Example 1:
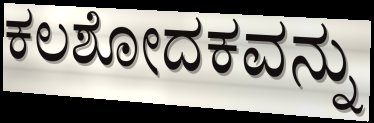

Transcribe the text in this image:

ಕಲಶೋದಕವನ್ನು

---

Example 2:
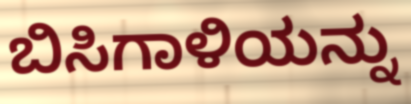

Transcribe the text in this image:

ಬಿಸಿಗಾಳಿಯನ್ನು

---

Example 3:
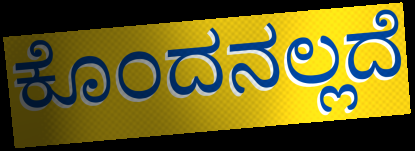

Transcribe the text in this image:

ಕೊಂದನಲ್ಲದೆ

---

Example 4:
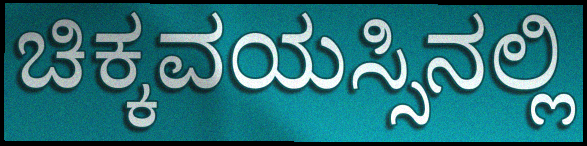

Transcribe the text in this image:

ಚಿಕ್ಕವಯಸ್ಸಿನಲ್ಲಿ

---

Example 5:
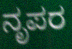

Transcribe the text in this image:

ನೃಪರ